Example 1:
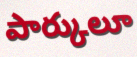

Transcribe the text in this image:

పార్కులూ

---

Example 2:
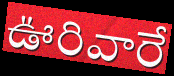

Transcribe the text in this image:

ఊరివారే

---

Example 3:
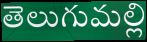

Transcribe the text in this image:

తెలుగుమల్లి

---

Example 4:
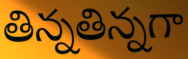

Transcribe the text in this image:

తిన్నతిన్నగా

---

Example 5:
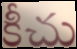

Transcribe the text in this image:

కీచు